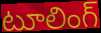
టూలింగ్